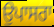
ਉਪਾਸਰਾ